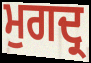
ਮੁਗਦ੍ਰ